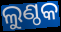
ଲୁଣ୍ଠକ